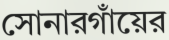
সোনারগাঁয়ের